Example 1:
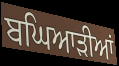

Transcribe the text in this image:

ਬਘਿਆੜੀਆਂ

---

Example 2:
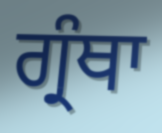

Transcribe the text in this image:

ਗ੍ਰੰਥਾ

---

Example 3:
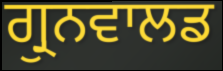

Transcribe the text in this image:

ਗ੍ਰੁਨਵਾਲਡ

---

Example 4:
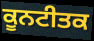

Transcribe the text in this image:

ਕੂਨਟੀਤਕ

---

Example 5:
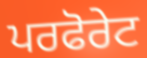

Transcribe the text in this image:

ਪਰਫੋਰੇਟ